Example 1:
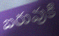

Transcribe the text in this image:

బరువుకి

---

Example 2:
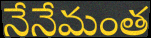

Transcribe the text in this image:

నేనేమంత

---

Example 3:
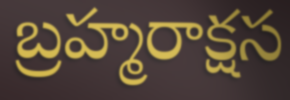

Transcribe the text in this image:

బ్రహ్మరాక్షస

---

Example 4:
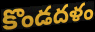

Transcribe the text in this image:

కొండదళం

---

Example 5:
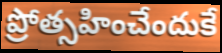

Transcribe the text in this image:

ప్రోత్సహించేందుకే